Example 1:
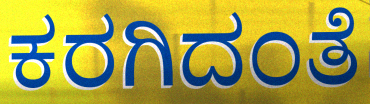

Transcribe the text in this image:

ಕರಗಿದಂತೆ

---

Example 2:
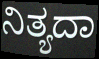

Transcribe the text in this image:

ನಿತ್ಯದಾ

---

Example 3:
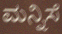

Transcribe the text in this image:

ಮನ್ನಿಸೆ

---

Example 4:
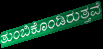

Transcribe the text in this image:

ತುಂಬಿಕೊಂಡಿರುತ್ತವೆ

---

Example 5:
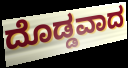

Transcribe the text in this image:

ದೊಡ್ಡವಾದ